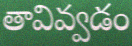
తావివ్వడం